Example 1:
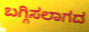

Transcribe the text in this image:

ಬಗ್ಗಿಸಲಾಗದ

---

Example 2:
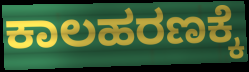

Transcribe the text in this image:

ಕಾಲಹರಣಕ್ಕೆ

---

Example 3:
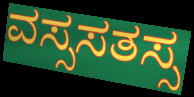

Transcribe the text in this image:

ವಸ್ಸಸತಸ್ಸ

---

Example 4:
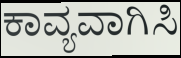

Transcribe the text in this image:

ಕಾವ್ಯವಾಗಿಸಿ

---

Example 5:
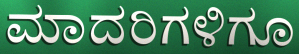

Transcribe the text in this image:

ಮಾದರಿಗಳಿಗೂ